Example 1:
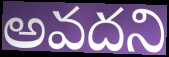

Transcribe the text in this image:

అవదని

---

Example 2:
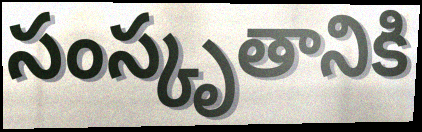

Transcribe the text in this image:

సంస్కృతానికి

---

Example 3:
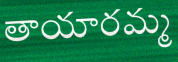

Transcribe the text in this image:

తాయారమ్మ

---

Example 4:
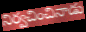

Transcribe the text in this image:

నిర్వచించినాడు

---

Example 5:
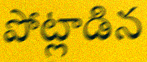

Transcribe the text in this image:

పోట్లాడిన